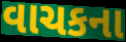
વાચકના